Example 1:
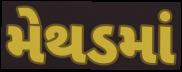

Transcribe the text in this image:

મેથડમાં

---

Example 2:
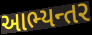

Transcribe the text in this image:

આભ્યન્તર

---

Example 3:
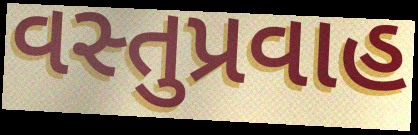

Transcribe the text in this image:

વસ્તુપ્રવાહ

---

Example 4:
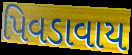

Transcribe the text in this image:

પિવડાવાય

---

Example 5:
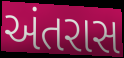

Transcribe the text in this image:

અંતરાસ